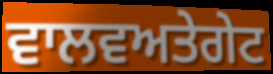
ਵਾਲਵਅਤੇਗੇਟ